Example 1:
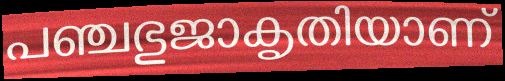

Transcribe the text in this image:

പഞ്ചഭുജാകൃതിയാണ്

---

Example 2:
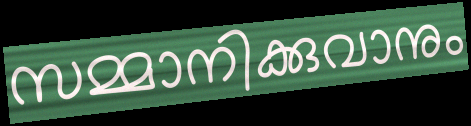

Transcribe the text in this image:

സമ്മാനിക്കുവാനും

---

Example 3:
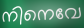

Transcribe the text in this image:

നിനെവേ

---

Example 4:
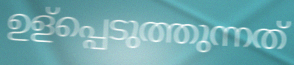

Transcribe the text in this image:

ഉള്പ്പെടുത്തുന്നത്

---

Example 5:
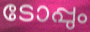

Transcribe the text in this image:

ടോപ്പും